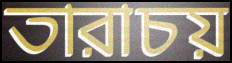
তারাচয়